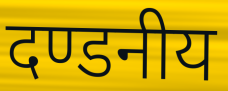
दण्डनीय